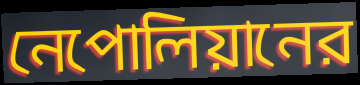
নেপোলিয়ানের